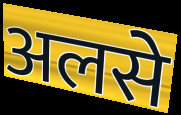
अलसे